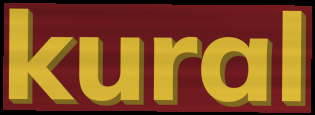
kural